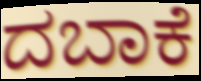
ದಬಾಕೆ